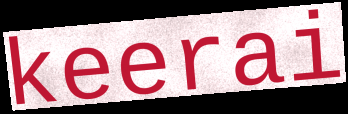
keerai